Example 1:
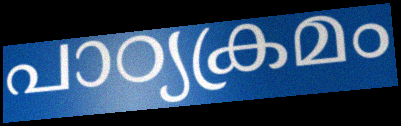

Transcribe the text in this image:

പാഠ്യക്രമം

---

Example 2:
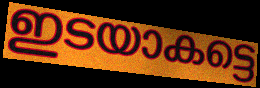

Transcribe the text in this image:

ഇടയാകട്ടെ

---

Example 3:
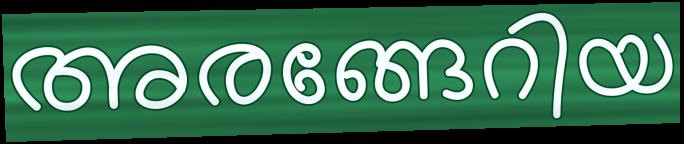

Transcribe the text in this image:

അരങ്ങേറിയ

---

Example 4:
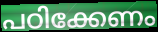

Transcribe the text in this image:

പഠിക്കേണം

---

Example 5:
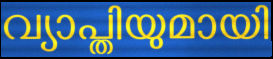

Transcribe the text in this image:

വ്യാപ്തിയുമായി